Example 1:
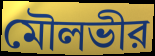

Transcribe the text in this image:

মৌলভীর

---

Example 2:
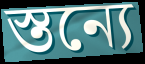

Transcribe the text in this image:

স্তন্যে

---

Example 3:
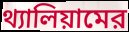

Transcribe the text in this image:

থ্যালিয়ামের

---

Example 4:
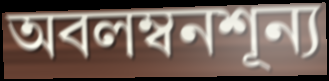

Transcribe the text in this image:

অবলম্বনশূন্য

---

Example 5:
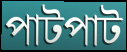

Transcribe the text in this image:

পাটপাট